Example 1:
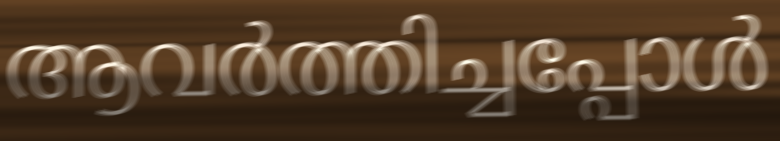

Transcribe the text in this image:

ആവർത്തിച്ചപ്പോൾ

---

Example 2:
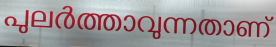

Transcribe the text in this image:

പുലർത്താവുന്നതാണ്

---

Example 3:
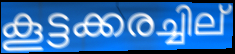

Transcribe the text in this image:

കൂട്ടക്കരച്ചില്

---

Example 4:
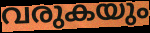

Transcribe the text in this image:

വരുകയും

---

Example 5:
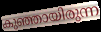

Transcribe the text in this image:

കുഞ്ഞായിരുന്ന